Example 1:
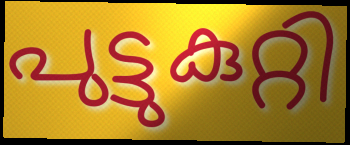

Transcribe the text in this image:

പുട്ടുകുറ്റി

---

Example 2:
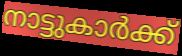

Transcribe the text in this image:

നാട്ടുകാർക്ക്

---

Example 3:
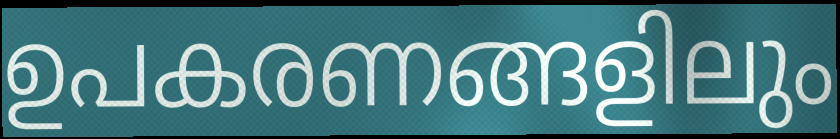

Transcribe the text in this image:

ഉപകരണങ്ങളിലും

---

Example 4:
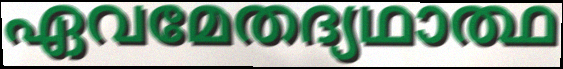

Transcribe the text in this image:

ഏവമേതദ്യഥാത്ഥ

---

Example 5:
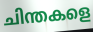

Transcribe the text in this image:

ചിന്തകളെ